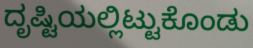
ದೃಷ್ಟಿಯಲ್ಲಿಟ್ಟುಕೊಂಡು